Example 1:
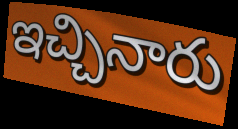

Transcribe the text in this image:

ఇచ్చినారు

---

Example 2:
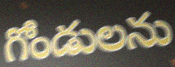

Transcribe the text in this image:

గోండులను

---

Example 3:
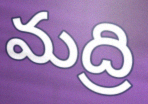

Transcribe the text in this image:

మద్రి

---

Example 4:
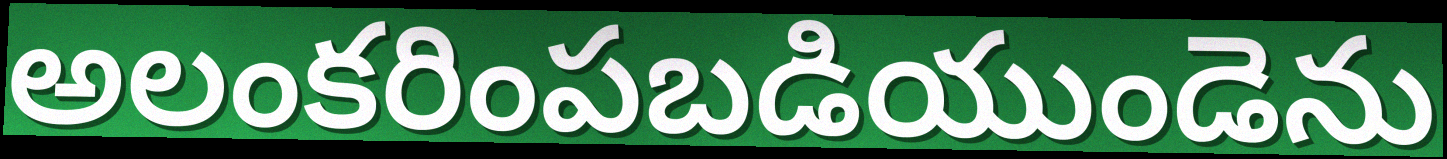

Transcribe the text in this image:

అలంకరింపబడియుండెను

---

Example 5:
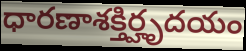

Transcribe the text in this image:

ధారణాశక్తిర్హృదయం